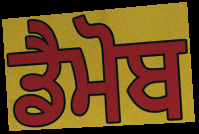
ਡੈਮੋਬ